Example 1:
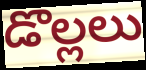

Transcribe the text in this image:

డొల్లలు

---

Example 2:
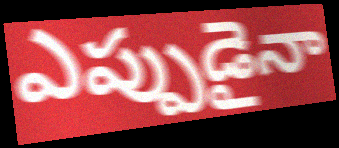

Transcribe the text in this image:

ఎప్పుడైనా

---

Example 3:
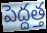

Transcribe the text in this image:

పెద్దత్త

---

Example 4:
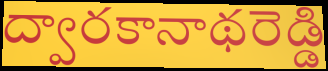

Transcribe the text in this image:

ద్వారకానాథరెడ్డి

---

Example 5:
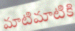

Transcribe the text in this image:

మాటిమాటికి